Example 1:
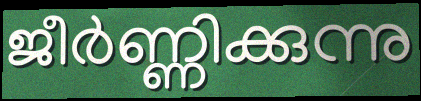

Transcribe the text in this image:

ജീർണ്ണിക്കുന്നു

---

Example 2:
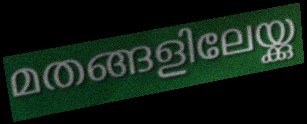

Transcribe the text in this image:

മതങ്ങളിലേയ്ക്കു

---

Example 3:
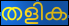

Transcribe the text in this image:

തളിക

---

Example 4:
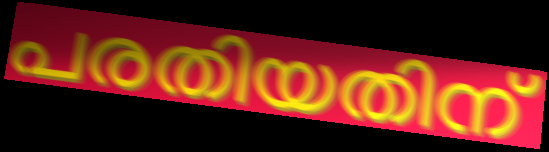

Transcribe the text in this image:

പരതിയതിന്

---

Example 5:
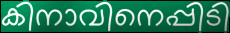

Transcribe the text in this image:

കിനാവിനെപ്പിടി